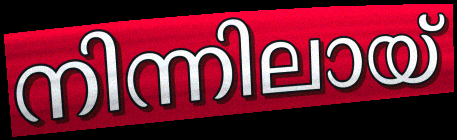
നിന്നിലായ്